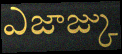
ఎజాజ్కు